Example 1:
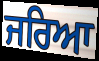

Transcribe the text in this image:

ਜਰਿਆ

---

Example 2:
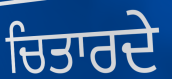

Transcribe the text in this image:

ਚਿਤਾਰਦੇ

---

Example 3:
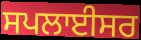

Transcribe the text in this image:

ਸਪਲਾਈਸਰ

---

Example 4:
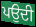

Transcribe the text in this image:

ਪਉਦੀ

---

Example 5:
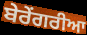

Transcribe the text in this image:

ਬੇਰੇਂਗਰੀਆ